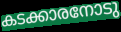
കടക്കാരനോടു